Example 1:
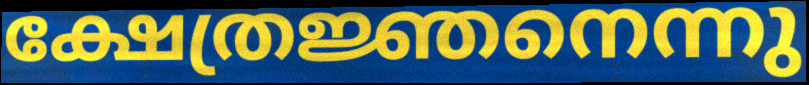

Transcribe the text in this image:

ക്ഷേത്രജ്ഞനെന്നു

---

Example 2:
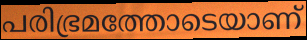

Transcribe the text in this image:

പരിഭ്രമത്തോടെയാണ്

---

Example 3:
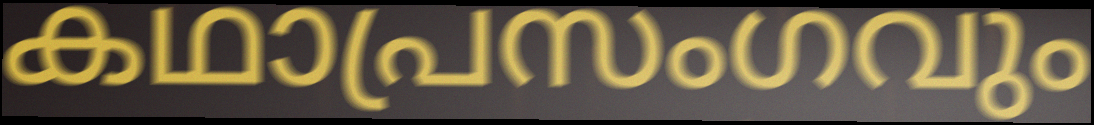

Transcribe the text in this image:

കഥാപ്രസംഗവും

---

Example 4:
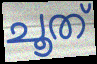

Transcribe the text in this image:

ചൂത്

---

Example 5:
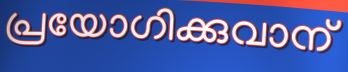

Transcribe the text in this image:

പ്രയോഗിക്കുവാന്